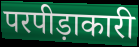
परपीड़ाकारी